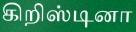
கிறிஸ்டினா